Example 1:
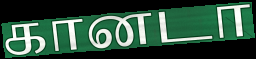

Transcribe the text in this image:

கானடா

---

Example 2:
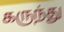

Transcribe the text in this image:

கருந்து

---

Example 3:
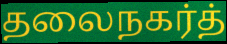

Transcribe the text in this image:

தலைநகர்த்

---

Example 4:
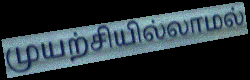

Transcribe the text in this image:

முயற்சியில்லாமல்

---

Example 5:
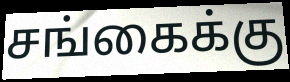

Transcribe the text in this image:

சங்கைக்கு